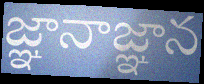
జ్ఞానాజ్ఞాన